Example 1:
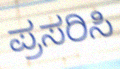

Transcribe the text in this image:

ಪ್ರಸರಿಸಿ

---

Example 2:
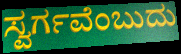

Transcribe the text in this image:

ಸ್ವರ್ಗವೆಂಬುದು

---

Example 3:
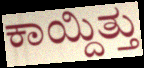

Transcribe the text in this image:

ಕಾಯ್ದಿತ್ತು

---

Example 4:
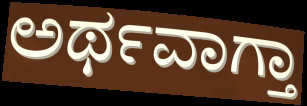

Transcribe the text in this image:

ಅರ್ಥವಾಗ್ತಾ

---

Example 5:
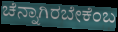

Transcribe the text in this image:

ಚೆನ್ನಾಗಿರಬೇಕೆಂಬ